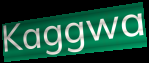
Kaggwa